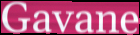
Gavane